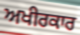
ਅਖੀਰਕਾਰ